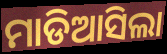
ମାଡିଆସିଲା